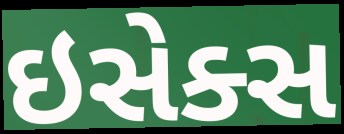
ઇસેક્સ